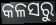
କଳସରୁ